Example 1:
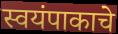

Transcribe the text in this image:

स्वयंपाकाचे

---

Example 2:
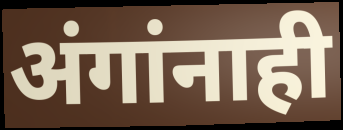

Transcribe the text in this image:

अंगांनाही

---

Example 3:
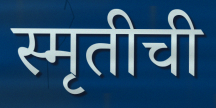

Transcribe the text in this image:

स्मृतीची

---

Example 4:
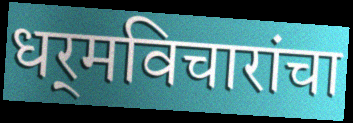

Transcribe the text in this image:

धर्मविचारांचा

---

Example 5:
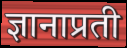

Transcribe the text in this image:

ज्ञानाप्रती